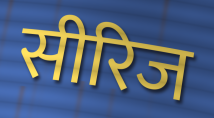
सीरिज